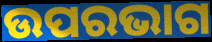
ଉପରଭାଗ